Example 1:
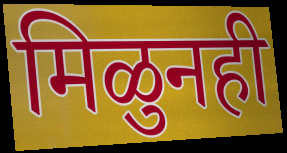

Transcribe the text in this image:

मिळुनही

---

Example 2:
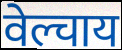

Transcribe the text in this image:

वेल्चाय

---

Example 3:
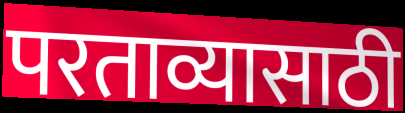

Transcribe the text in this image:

परताव्यासाठी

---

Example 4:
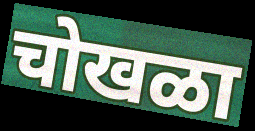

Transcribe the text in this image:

चोखळा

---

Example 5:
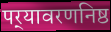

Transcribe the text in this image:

पर्यावरणनिष्ठ